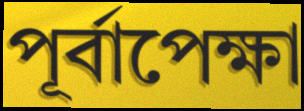
পূর্বাপেক্ষা